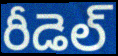
రీడెల్